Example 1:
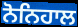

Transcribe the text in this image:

ਨੋਨਿਹਾਲ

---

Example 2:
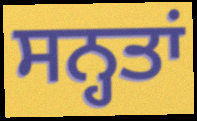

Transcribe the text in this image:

ਸਨ੍ਹਤਾਂ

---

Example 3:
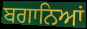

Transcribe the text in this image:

ਬਗਾਨਿਆਂ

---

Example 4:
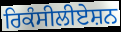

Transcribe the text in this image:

ਰਿਕੰਸੀਲੀਏਸ਼ਨ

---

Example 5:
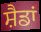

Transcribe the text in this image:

ਸ਼ੈਡਾਂ